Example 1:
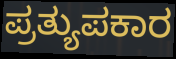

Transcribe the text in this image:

ಪ್ರತ್ಯುಪಕಾರ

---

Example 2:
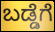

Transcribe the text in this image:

ಬಡ್ಡೆಗೆ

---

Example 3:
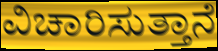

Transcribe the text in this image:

ವಿಚಾರಿಸುತ್ತಾನೆ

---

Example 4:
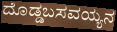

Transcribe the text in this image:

ದೊಡ್ಡಬಸವಯ್ಯನ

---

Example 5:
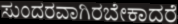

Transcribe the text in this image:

ಸುಂದರವಾಗಿರಬೇಕಾದರೆ